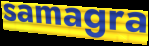
samagra